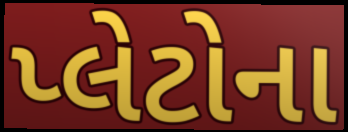
પ્લેટોના